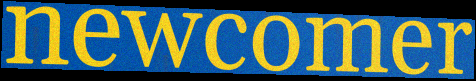
newcomer